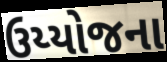
ઉય્યોજના